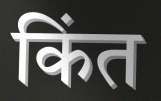
किंत